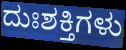
ದುಃಶಕ್ತಿಗಳು